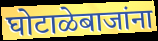
घोटाळेबाजांना